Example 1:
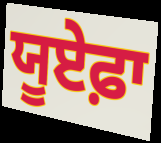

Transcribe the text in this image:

ਯੂਏਫ਼ਾ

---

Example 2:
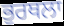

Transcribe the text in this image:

ਭੁਰਥਲਾ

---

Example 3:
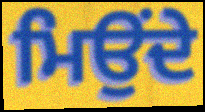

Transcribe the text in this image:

ਮਿਉਂਦੇ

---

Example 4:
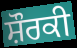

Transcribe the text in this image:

ਸ਼ੌਰਕੀ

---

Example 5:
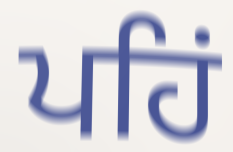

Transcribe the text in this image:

ਪਹਿਂ